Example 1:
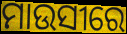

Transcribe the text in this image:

ମାଉସୀରେ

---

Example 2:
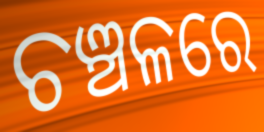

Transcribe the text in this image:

ଚଞ୍ଚଳରେ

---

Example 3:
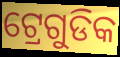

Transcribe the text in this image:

ଟ୍ରେଗୁଡିକ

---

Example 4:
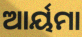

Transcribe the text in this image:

ଆର୍ୟମା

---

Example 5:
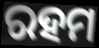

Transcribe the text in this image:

ରହମ